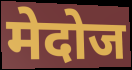
मेदोज